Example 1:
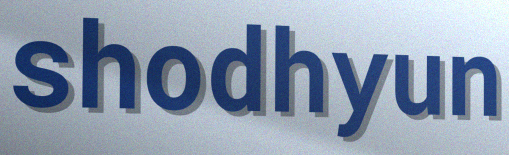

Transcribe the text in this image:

shodhyun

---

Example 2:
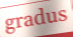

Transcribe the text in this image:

gradus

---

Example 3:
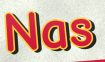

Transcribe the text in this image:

Nas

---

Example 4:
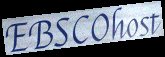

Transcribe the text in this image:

EBSCOhost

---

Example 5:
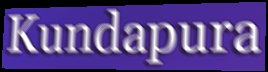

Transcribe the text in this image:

Kundapura